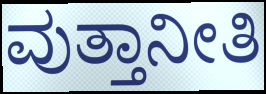
ವುತ್ತಾನೀತಿ